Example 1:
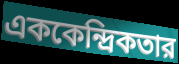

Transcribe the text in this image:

এককেন্দ্রিকতার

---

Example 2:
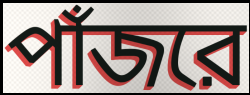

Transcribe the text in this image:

পাঁজরে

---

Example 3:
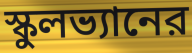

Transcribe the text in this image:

স্কুলভ্যানের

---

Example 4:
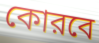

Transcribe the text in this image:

কোরবে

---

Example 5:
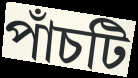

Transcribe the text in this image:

পাঁচটি